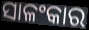
ସାଳଂକାର